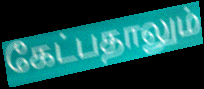
கேட்பதாலும்